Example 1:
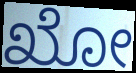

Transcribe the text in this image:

ಖೋ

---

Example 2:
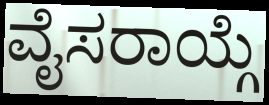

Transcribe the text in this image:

ವೈಸರಾಯ್ಗೆ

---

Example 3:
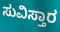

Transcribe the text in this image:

ಸುವಿಸ್ತಾರ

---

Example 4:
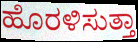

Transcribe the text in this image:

ಹೊರಳಿಸುತ್ತಾ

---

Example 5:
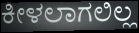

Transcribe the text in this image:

ಕೀಳಲಾಗಲಿಲ್ಲ